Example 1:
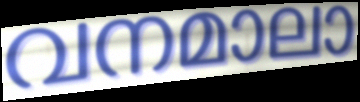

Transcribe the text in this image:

വനമാലാ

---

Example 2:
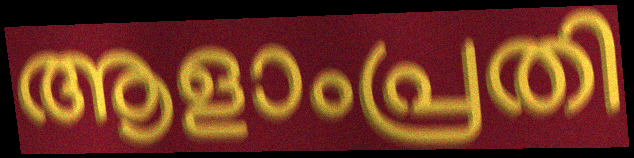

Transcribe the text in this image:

ആളാംപ്രതി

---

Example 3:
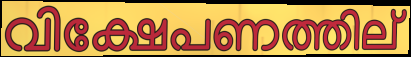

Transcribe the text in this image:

വിക്ഷേപണത്തില്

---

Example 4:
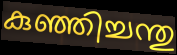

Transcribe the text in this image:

കുഞ്ഞിച്ചന്തു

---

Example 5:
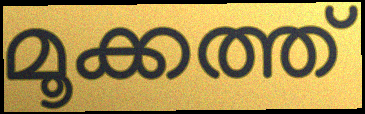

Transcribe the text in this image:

മൂക്കത്ത്